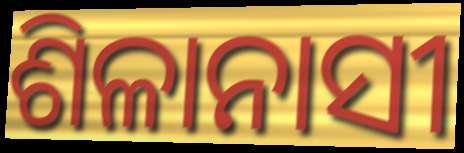
ଶିଳାନାସୀ